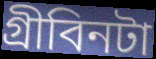
গ্রীবিনটা